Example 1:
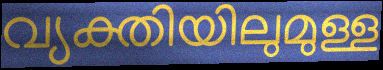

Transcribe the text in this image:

വ്യക്തിയിലുമുള്ള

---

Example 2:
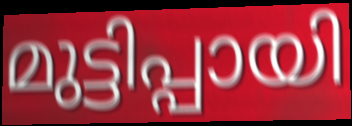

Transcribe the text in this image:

മുട്ടിപ്പായി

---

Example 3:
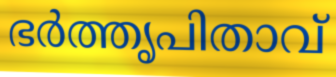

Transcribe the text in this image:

ഭർത്തൃപിതാവ്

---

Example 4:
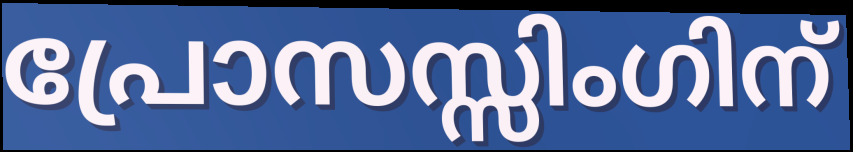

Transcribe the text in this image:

പ്രോസസ്സിംഗിന്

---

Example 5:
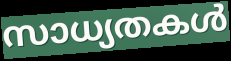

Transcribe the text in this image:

സാധ്യതകൾ